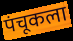
पंचूकला